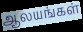
ஆலயங்கள்